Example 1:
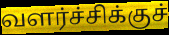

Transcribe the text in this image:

வளர்ச்சிக்குச்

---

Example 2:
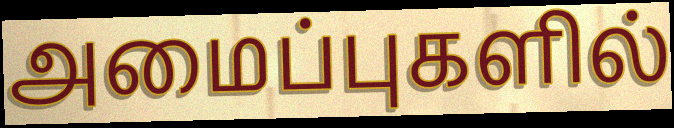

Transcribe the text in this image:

அமைப்புகளில்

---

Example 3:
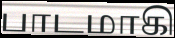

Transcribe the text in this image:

பாடமாகி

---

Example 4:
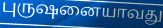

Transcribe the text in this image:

புருஷனையாவது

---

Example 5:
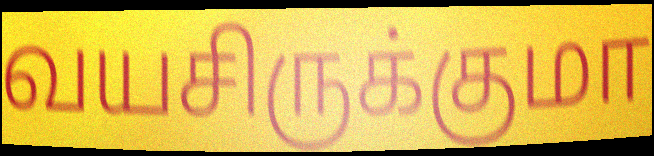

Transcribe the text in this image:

வயசிருக்குமா